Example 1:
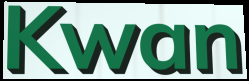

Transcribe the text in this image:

Kwan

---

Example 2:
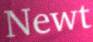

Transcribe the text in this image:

Newt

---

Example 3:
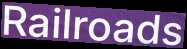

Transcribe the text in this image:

Railroads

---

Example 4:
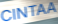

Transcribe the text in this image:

CINTAA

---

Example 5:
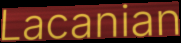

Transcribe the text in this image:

Lacanian